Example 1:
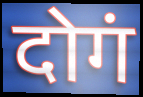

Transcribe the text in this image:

दोगं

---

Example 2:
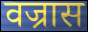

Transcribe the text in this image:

वज्रास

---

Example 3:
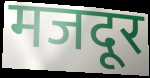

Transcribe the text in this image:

मजदूर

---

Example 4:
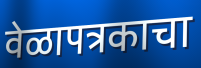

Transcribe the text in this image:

वेळापत्रकाचा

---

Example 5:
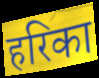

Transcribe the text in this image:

हरिका